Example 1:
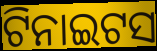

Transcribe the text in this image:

ଟିନାଇଟସ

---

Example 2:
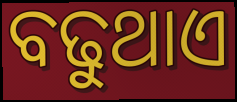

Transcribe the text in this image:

ବଢୁଥାଏ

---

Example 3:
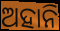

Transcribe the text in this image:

ଅହାନି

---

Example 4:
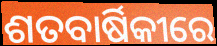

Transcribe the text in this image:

ଶତବାର୍ଷିକୀରେ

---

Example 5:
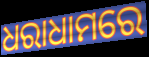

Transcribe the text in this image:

ଧରାଧାମରେ